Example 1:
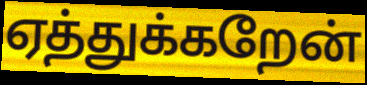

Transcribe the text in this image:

ஏத்துக்கறேன்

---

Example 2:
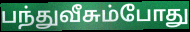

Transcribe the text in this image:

பந்துவீசும்போது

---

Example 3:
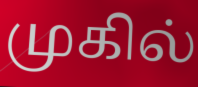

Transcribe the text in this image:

முகில்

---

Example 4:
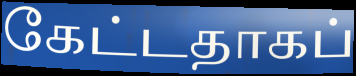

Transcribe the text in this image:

கேட்டதாகப்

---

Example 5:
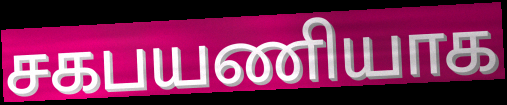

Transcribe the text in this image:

சகபயணியாக